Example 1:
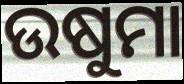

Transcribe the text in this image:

ଉଷୁମା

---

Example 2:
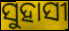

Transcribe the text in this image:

ସୁହାସୀ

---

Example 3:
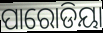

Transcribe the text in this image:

ପାରୋଡିୟା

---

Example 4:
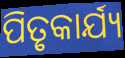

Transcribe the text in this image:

ପିତୃକାର୍ଯ୍ୟ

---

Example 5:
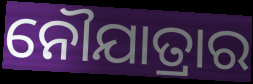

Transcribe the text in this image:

ନୌଯାତ୍ରାର